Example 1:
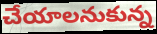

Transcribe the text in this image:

చేయాలనుకున్న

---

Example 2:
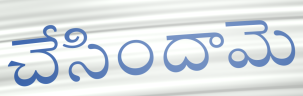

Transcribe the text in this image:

చేసిందామె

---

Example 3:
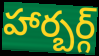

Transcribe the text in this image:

హార్బర్గ్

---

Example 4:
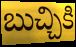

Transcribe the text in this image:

బుచ్చికి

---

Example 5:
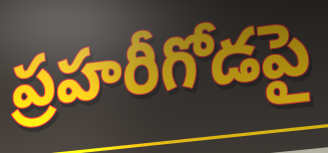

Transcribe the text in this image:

ప్రహరీగోడపై